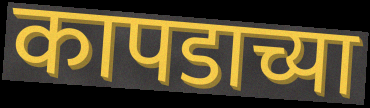
कापडाच्या